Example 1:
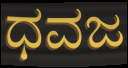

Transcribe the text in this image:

ಧವಜ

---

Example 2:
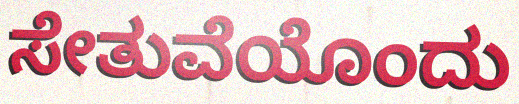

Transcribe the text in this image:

ಸೇತುವೆಯೊಂದು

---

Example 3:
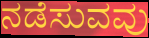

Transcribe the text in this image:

ನಡೆಸುವವು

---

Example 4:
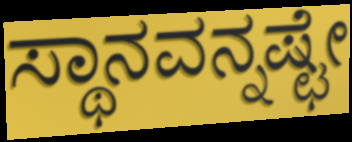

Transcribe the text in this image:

ಸ್ಥಾನವನ್ನಷ್ಟೇ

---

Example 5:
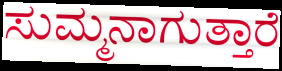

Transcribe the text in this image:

ಸುಮ್ಮನಾಗುತ್ತಾರೆ